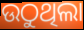
ଉଠୁଥିଲା